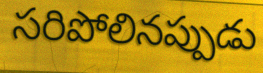
సరిపోలినప్పుడు